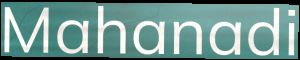
Mahanadi